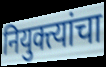
नियुक्त्यांचा